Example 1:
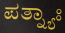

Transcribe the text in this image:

ಪತ್ನ್ಯಾಃ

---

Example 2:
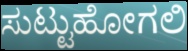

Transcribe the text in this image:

ಸುಟ್ಟುಹೋಗಲಿ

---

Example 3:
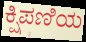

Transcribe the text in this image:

ಕ್ಷಿಪಣಿಯ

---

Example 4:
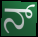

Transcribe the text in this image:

ನ್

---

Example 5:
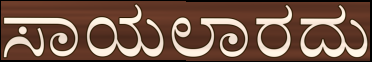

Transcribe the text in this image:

ಸಾಯಲಾರದು